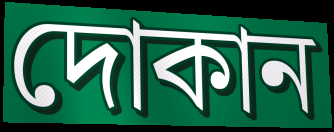
দোকান